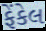
ફેંકેલ